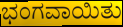
ಭಂಗವಾಯಿತು